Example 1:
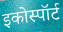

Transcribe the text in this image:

इकोस्पॉर्ट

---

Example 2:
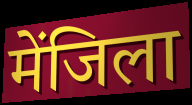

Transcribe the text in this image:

मेंजिला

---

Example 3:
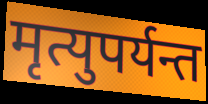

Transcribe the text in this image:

मृत्युपर्यन्त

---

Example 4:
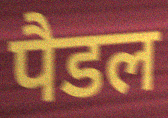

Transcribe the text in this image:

पैडल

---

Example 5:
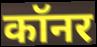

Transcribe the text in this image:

कॉनर